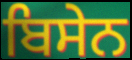
ਬਿਸੇਨ